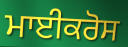
ਮਾਈਕਰੋਸ